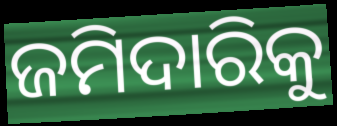
ଜମିଦାରିକୁ